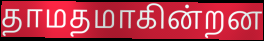
தாமதமாகின்றன